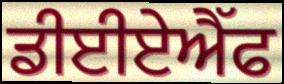
ਡੀਈਏਐੱਫ